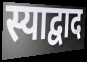
स्याद्वाद